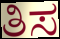
ತಿಸ